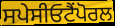
ਸਪੇਸੀਓਟੈਂਪੋਰਲ